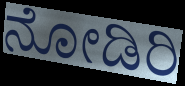
ನೋಡಿರಿ